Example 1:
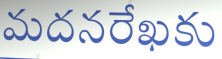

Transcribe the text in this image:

మదనరేఖకు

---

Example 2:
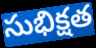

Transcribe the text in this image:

సుభిక్షత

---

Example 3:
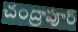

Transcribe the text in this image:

చంద్రాపూర్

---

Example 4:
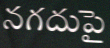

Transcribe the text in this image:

నగదుపై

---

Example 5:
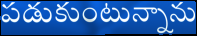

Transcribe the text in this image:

పడుకుంటున్నాను